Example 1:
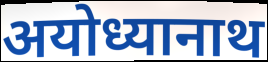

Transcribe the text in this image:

अयोध्यानाथ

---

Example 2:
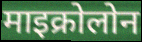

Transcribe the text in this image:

माइक्रोलोन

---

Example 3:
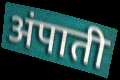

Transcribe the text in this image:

अंपाती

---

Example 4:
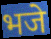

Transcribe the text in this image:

भजे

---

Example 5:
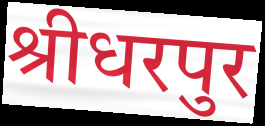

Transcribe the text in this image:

श्रीधरपुर